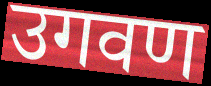
उगवण